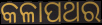
କଳାପଥର